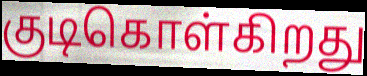
குடிகொள்கிறது